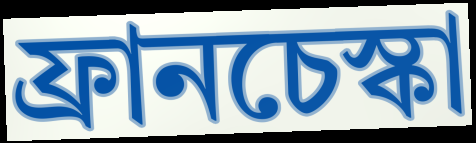
ফ্রানচেস্কা